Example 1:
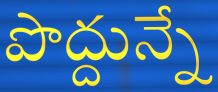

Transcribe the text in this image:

పొద్దున్నే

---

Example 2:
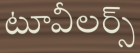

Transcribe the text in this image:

టూవీలర్స్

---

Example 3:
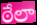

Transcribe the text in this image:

ఠేలా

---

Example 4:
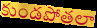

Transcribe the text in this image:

కుండపోతలా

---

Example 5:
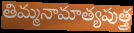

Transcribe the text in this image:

తిమ్మనామాత్యపుత్త్ర